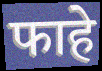
फाहे